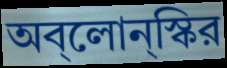
অব্‌লোন্‌স্কির